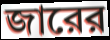
জারের